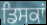
ਡਿਸਕਾਂ